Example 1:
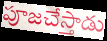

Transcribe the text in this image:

పూజచేస్తాడు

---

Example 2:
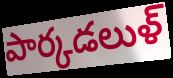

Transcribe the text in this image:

పార్కడలుళ్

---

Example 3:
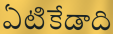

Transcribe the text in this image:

ఏటికేడాది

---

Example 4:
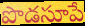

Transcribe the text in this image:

పొడసూపే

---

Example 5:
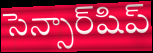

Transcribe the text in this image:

సెన్సార్‌షిప్